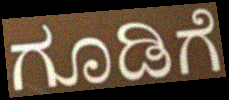
ಗೂಡಿಗೆ